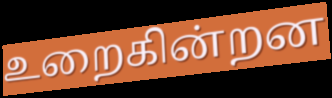
உறைகின்றன